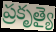
ప్రకృత్యై